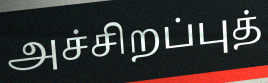
அச்சிறப்புத்